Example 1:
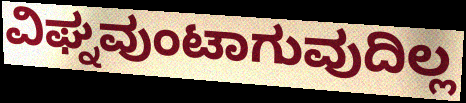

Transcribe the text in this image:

ವಿಘ್ನವುಂಟಾಗುವುದಿಲ್ಲ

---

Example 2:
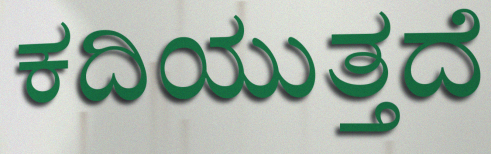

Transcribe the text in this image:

ಕದಿಯುತ್ತದೆ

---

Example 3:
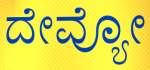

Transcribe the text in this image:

ದೇವ್ಯೋ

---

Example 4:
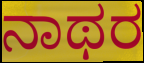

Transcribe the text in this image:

ನಾಥರ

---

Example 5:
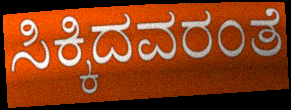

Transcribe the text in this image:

ಸಿಕ್ಕಿದವರಂತೆ